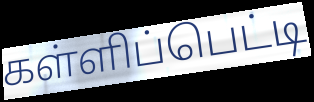
கள்ளிப்பெட்டி